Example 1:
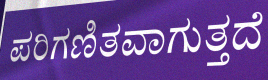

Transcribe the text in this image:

ಪರಿಗಣಿತವಾಗುತ್ತದೆ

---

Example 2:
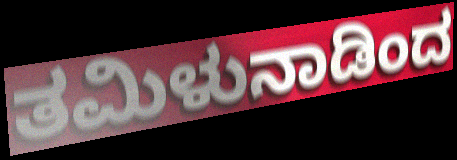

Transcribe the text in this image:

ತಮಿಳುನಾಡಿಂದ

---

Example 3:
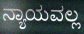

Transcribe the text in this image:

ನ್ಯಾಯವಲ್ಲ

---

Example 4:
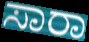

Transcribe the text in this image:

ಸಾರಾ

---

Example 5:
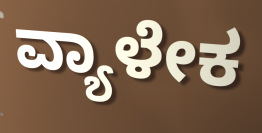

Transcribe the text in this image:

ವ್ಯಾಳೇಕ